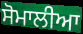
ਸੋਮਾਲੀਆ